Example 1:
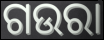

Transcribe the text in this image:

ଗଉରା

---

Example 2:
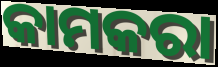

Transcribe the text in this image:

କାମକରା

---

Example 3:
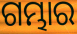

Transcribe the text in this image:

ଗମ୍ଭାର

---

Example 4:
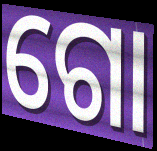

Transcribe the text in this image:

ଗୋ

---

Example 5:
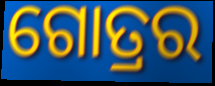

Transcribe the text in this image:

ଗୋତ୍ରର